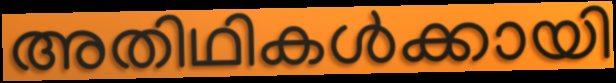
അതിഥികൾക്കായി